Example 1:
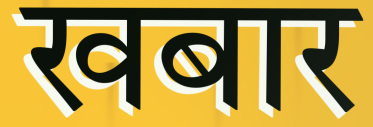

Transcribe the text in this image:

खबार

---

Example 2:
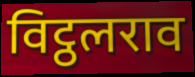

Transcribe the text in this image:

विट्ठलराव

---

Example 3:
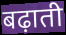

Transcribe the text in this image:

बढ़ाती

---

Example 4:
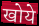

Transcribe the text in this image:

खोये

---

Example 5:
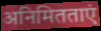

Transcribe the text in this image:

अनिमितताएं